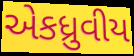
એકધ્રુવીય